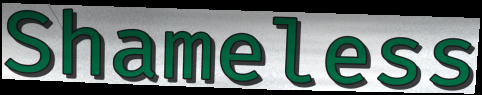
Shameless